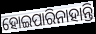
ହୋଇପାରିନାହାନ୍ତି